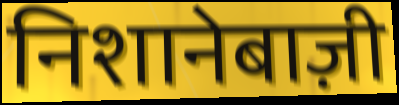
निशानेबाज़ी